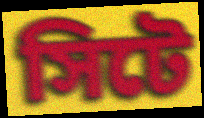
সিটে